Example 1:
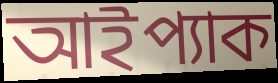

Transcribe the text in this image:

আইপ্যাক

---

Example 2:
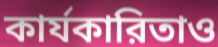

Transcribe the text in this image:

কার্যকারিতাও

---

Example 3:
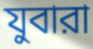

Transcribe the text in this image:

যুবারা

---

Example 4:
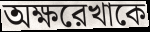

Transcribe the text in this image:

অক্ষরেখাকে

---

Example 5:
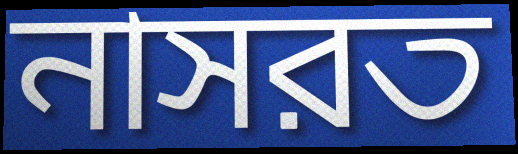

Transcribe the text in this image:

নাসরত